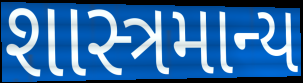
શાસ્ત્રમાન્ય